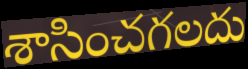
శాసించగలదు